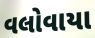
વલોવાયા